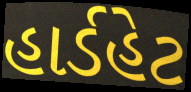
હાર્ડહેટ